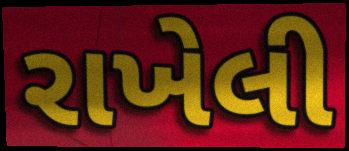
રાખેલી